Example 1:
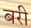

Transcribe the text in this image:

बरी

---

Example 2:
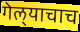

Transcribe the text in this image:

गेल्याचाच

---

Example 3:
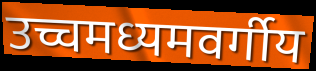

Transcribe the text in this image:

उच्चमध्यमवर्गीय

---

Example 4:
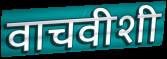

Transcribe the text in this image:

वाचवीशी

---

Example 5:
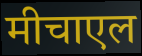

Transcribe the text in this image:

मीचाएल